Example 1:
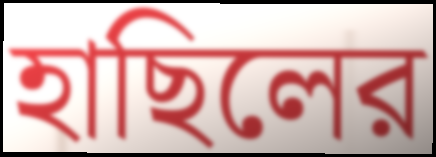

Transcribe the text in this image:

হাছিলের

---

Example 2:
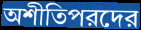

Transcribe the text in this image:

অশীতিপরদের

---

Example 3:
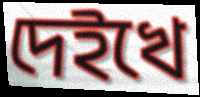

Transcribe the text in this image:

দেইখে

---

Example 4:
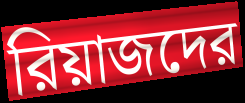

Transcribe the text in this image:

রিয়াজদের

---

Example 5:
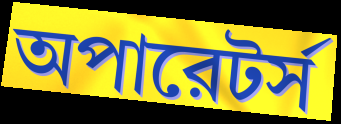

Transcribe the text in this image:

অপারেটর্স